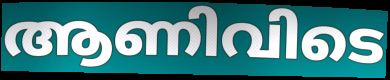
ആണിവിടെ